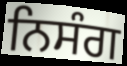
ਨਿਸੰਗ